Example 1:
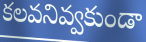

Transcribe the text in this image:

కలవనివ్వకుండా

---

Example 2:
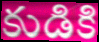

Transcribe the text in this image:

కుడికి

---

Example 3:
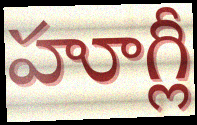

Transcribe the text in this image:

హూగ్లీ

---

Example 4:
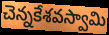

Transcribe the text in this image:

చెన్నకేశవస్వామి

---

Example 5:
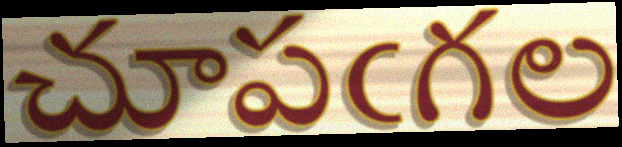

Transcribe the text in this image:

చూపఁగల